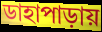
ডাহাপাড়ায়